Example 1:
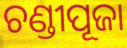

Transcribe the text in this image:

ଚଣ୍ଡୀପୂଜା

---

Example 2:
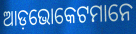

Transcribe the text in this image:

ଆଡ଼ଭୋକେଟମାନେ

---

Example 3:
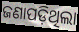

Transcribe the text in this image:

ଜଣାପଡ଼ିଥିଲା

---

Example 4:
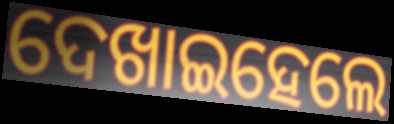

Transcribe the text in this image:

ଦେଖାଇହେଲେ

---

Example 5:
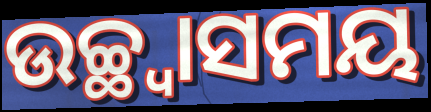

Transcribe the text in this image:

ଉଚ୍ଛ୍ଵାସମୟ